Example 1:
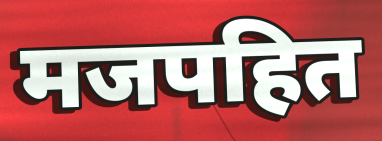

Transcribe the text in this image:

मजपहित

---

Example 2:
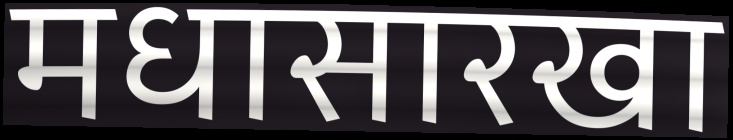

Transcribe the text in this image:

मधासारखा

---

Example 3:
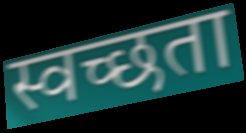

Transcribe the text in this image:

स्वच्छता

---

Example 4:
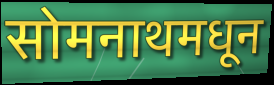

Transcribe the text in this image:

सोमनाथमधून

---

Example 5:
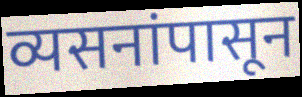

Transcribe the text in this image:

व्यसनांपासून